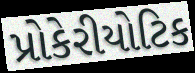
પ્રોકેરીયોટિક